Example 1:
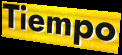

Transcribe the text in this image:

Tiempo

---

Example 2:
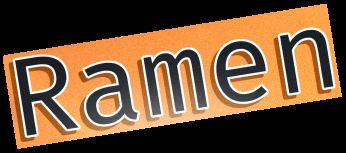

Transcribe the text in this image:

Ramen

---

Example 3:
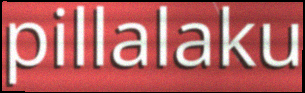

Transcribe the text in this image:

pillalaku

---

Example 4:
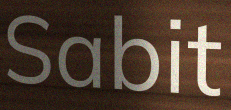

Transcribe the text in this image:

Sabit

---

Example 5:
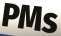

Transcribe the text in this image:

PMs